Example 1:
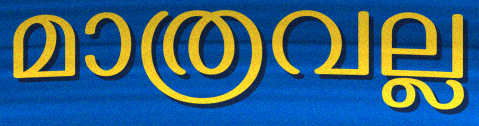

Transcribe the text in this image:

മാത്രവല്ല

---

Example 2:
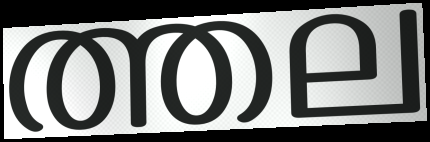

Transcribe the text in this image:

ത്തല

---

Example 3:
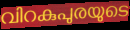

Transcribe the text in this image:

വിറകുപുരയുടെ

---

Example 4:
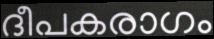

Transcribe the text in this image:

ദീപകരാഗം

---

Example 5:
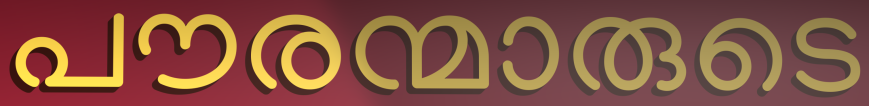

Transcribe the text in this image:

പൗരന്മാരുടെ